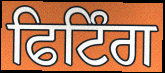
ਫਿਟਿੰਗ